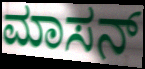
ಮಾಸನ್